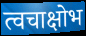
त्वचाक्षोभ